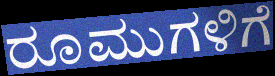
ರೂಮುಗಳಿಗೆ